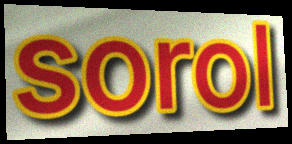
sorol